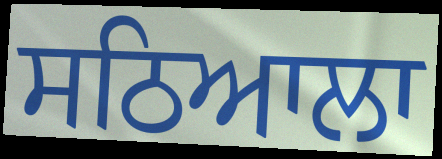
ਸਠਿਆਲਾ